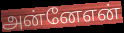
அன்னேஎன்